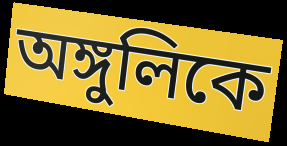
অঙ্গুলিকে